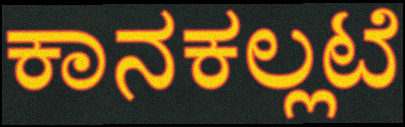
ಕಾನಕಲ್ಲಟೆ